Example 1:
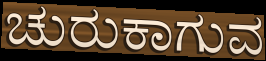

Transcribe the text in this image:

ಚುರುಕಾಗುವ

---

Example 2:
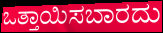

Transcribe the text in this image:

ಒತ್ತಾಯಿಸಬಾರದು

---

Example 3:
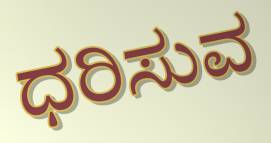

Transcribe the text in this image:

ಧರಿಸುವ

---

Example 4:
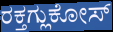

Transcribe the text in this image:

ರಕ್ತಗ್ಲುಕೋಸ್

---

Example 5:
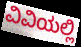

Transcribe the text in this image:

ವಿವಿಯಲ್ಲಿ